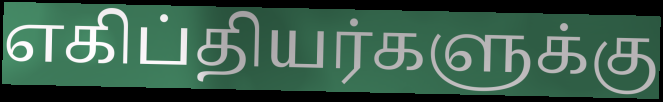
எகிப்தியர்களுக்கு